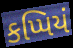
કપ્પિયં